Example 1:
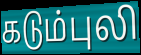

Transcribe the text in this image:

கடும்புலி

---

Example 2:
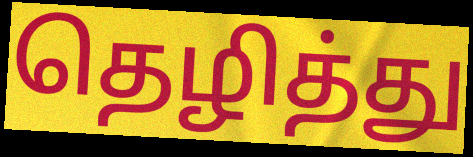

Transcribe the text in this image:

தெழித்து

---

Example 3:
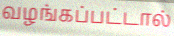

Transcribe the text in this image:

வழங்கப்பட்டால்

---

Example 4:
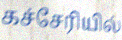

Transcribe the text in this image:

கச்சேரியில்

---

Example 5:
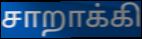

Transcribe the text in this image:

சாறாக்கி